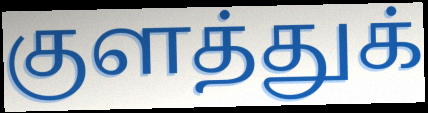
குளத்துக்